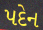
પદેન